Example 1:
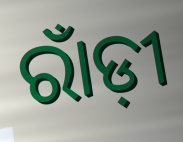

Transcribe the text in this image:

ରାଁଡ଼ୀ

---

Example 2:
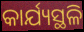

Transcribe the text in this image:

କାର୍ଯ୍ୟସ୍ଥଳି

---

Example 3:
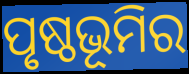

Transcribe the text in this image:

ପୃଷ୍ଠଭୂମିର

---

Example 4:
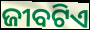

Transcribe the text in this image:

ଜୀବଟିଏ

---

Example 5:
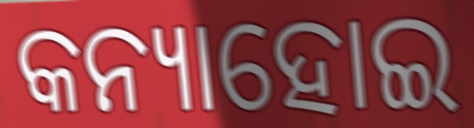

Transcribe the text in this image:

କନ୍ୟାହୋଇ